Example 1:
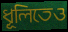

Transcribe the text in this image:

ধূলিতেও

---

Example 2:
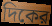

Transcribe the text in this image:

দিকের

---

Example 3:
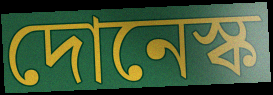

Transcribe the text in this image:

দোনেস্ক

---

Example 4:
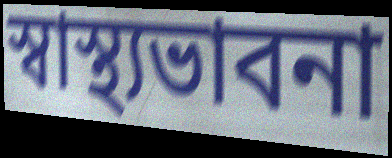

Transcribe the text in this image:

স্বাস্থ্যভাবনা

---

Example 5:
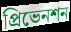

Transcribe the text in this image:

প্রিভেনশন